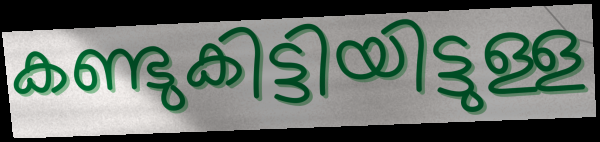
കണ്ടുകിട്ടിയിട്ടുള്ള